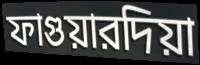
ফাগুয়ারদিয়া